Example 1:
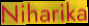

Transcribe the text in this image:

Niharika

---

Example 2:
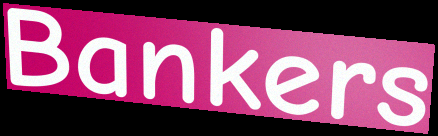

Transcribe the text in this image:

Bankers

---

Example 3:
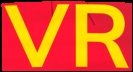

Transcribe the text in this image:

VR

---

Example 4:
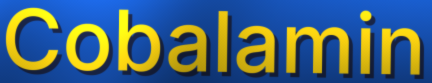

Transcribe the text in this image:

Cobalamin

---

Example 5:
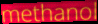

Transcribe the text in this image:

methanol